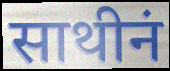
साथीनं